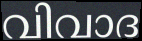
വിവാദ